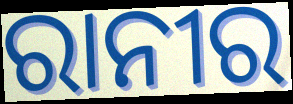
ରାନୀର